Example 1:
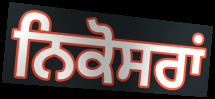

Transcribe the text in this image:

ਨਿਕੋਸਰਾਂ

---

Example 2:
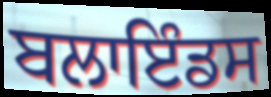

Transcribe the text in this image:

ਬਲਾਇੰਡਸ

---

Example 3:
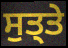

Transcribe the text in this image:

ਸੁਤ੍ਤੇ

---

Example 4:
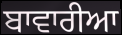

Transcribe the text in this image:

ਬਾਵਾਰੀਆ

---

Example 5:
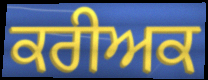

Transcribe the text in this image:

ਕਰੀਅਕ